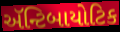
ઍન્ટિબાયોટિક